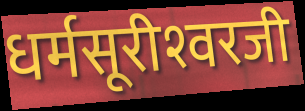
धर्मसूरीश्वरजी